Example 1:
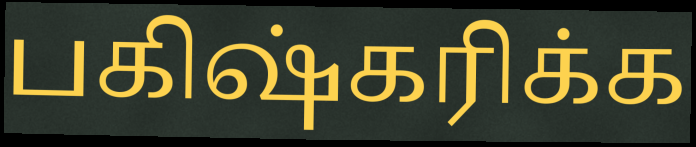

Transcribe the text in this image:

பகிஷ்கரிக்க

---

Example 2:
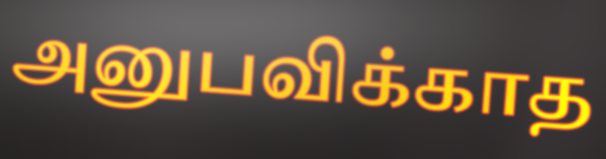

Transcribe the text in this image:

அனுபவிக்காத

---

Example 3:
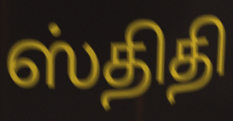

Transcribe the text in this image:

ஸ்திதி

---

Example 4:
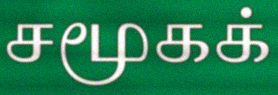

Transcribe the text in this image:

சமூகக்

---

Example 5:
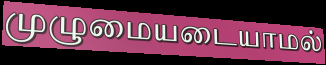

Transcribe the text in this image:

முழுமையடையாமல்